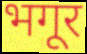
भगूर